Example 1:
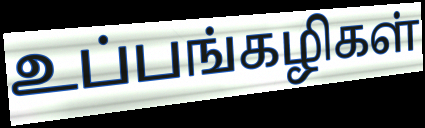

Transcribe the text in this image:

உப்பங்கழிகள்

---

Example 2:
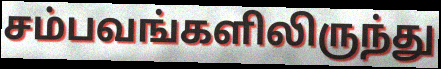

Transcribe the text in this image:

சம்பவங்களிலிருந்து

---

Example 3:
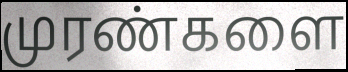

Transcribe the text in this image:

முரண்களை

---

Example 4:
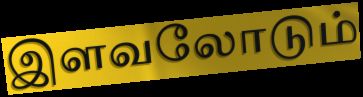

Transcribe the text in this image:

இளவலோடும்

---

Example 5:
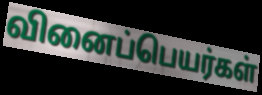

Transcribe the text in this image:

வினைப்பெயர்கள்